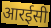
आरईसी